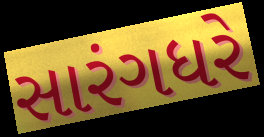
સારંગધરે